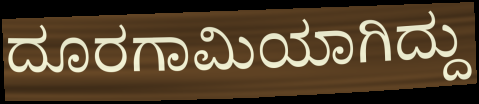
ದೂರಗಾಮಿಯಾಗಿದ್ದು